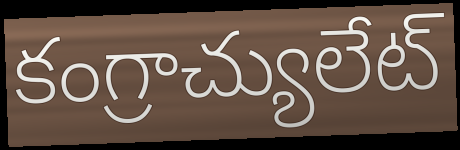
కంగ్రాచ్యులేట్